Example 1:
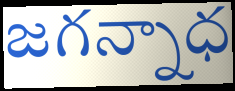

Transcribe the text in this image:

జగన్నాధ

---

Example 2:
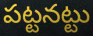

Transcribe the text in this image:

పట్టనట్టు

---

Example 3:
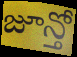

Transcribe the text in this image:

జూన్తో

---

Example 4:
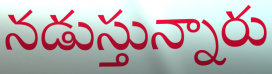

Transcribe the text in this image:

నడుస్తున్నారు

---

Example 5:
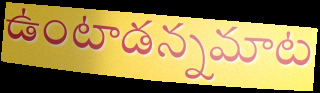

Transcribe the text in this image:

ఉంటాడన్నమాట